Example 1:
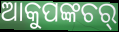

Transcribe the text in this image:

ଆକୁପଙ୍କଚର୍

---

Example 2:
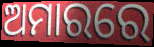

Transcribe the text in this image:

ଅମାରରେ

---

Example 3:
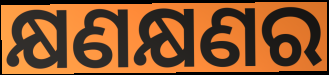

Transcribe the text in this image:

କ୍ଷଣକ୍ଷଣର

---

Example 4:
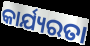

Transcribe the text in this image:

କାର୍ଯ୍ୟରତା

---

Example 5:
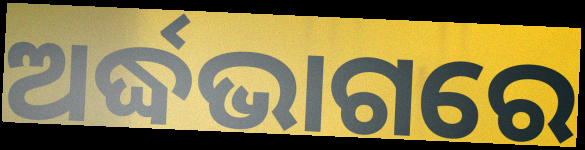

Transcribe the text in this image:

ଅର୍ଦ୍ଧଭାଗରେ